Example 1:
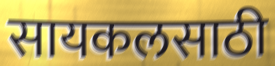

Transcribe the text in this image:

सायकलसाठी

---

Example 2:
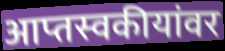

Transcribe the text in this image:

आप्तस्वकीयांवर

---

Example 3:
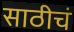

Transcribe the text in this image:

साठीचं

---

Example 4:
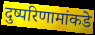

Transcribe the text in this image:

दुष्परिणामांकडे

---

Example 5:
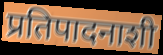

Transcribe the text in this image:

प्रतिपादनाशी